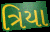
ત્રિયા